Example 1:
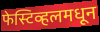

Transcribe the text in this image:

फेस्टिव्हलमधून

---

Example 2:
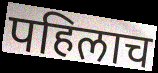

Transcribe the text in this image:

पहिलाच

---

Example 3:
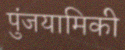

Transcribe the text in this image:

पुंजयामिकी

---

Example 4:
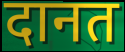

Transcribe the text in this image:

दानत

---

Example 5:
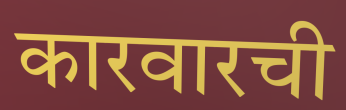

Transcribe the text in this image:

कारवारची